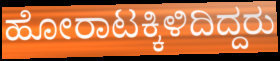
ಹೋರಾಟಕ್ಕಿಳಿದಿದ್ದರು